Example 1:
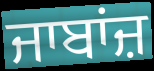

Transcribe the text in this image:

ਜਾਬਾਂਜ਼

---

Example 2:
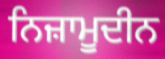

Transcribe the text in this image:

ਨਿਜ਼ਾਮੂਦੀਨ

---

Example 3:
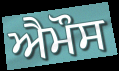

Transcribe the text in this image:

ਐਮੌਸ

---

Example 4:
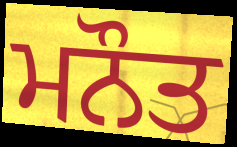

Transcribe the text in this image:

ਮਨੌਤ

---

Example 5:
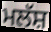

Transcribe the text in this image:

ਮਲੱਸ਼